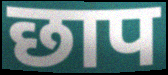
छाप